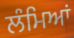
ਲੰਮਿਆਂ